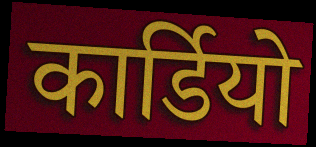
कार्डियो